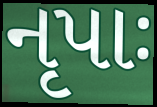
નૃપાઃ